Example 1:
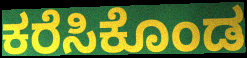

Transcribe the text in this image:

ಕರೆಸಿಕೊಂಡ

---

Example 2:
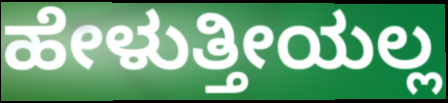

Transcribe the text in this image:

ಹೇಳುತ್ತೀಯಲ್ಲ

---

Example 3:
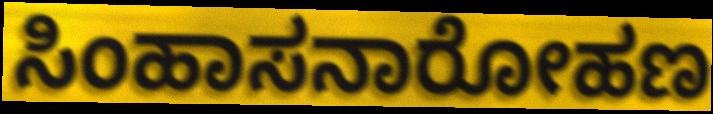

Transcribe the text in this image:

ಸಿಂಹಾಸನಾರೋಹಣ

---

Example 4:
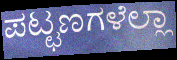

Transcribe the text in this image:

ಪಟ್ಟಣಗಳೆಲ್ಲಾ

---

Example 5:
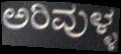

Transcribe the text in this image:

ಅರಿವುಳ್ಳ